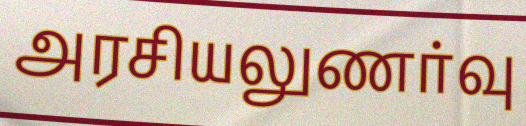
அரசியலுணர்வு